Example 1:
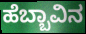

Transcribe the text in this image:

ಹೆಬ್ಬಾವಿನ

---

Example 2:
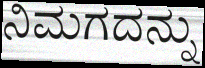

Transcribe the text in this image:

ನಿಮಗದನ್ನು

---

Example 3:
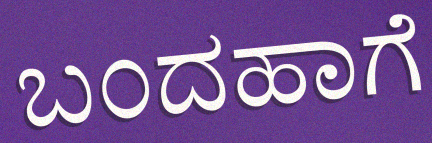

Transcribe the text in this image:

ಬಂದಹಾಗೆ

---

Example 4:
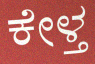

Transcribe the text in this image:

ಕೇಳ್ತ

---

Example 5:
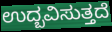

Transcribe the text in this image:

ಉದ್ಬವಿಸುತ್ತದೆ